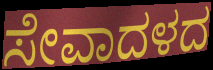
ಸೇವಾದಳದ